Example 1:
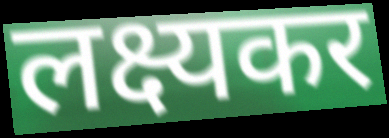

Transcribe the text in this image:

लक्ष्यकर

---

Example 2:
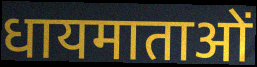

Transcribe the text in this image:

धायमाताओं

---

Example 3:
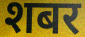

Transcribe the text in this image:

शबर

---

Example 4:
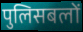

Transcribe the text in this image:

पुलिसबलों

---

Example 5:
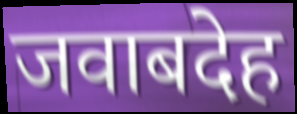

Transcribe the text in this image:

जवाबदेह